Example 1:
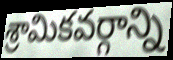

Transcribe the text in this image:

శ్రామికవర్గాన్ని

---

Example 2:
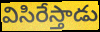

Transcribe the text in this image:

విసిరేస్తాడు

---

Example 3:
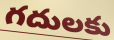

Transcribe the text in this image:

గదులకు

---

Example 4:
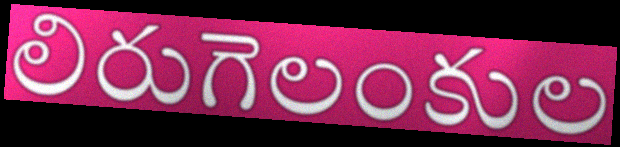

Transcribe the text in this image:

లిరుగెలంకుల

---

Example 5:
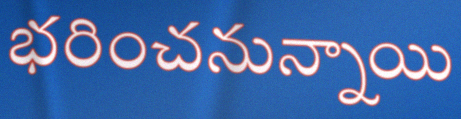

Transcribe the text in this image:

భరించనున్నాయి